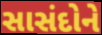
સાસંદોને